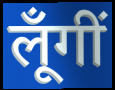
लूँगीं